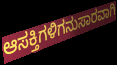
ಆಸಕ್ತಿಗಳಿಗನುಸಾರವಾಗಿ